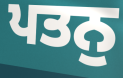
ਪਤਨੁ